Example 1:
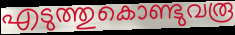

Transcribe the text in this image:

എടുത്തുകൊണ്ടുവരൂ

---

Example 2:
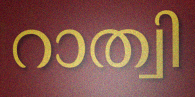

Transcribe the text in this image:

റാത്വി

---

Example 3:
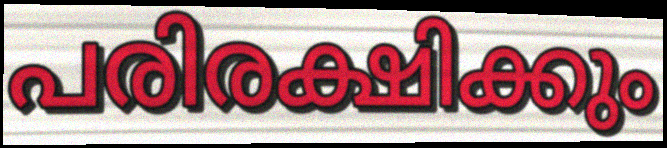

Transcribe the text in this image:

പരിരക്ഷിക്കും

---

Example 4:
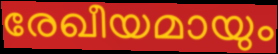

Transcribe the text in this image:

രേഖീയമായും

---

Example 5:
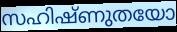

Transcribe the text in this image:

സഹിഷ്ണുതയോ